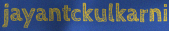
jayantckulkarni